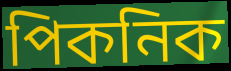
পিকনিক